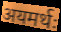
अयमर्थः